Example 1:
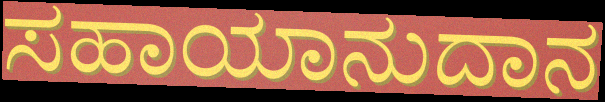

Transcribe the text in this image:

ಸಹಾಯಾನುದಾನ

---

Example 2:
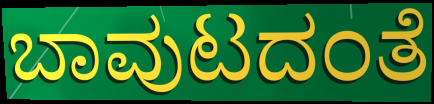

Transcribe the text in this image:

ಬಾವುಟದಂತೆ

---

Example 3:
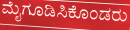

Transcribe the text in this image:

ಮೈಗೂಡಿಸಿಕೊಂಡರು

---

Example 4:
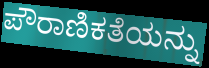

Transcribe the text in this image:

ಪೌರಾಣಿಕತೆಯನ್ನು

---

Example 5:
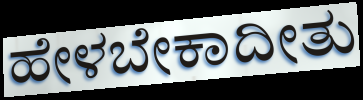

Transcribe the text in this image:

ಹೇಳಬೇಕಾದೀತು